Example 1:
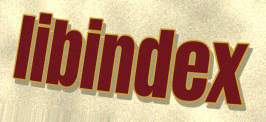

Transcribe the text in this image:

libindex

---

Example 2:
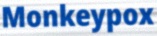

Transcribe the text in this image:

Monkeypox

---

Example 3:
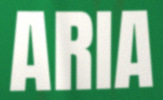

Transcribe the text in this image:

ARIA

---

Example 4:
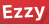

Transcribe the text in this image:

Ezzy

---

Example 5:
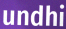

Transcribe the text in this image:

undhi